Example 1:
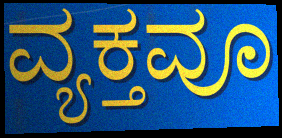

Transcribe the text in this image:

ವ್ಯಕ್ತವೂ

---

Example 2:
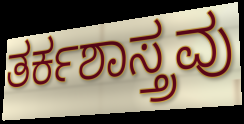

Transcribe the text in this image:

ತರ್ಕಶಾಸ್ತ್ರವು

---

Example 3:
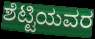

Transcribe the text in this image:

ಶೆಟ್ಟಿಯವರ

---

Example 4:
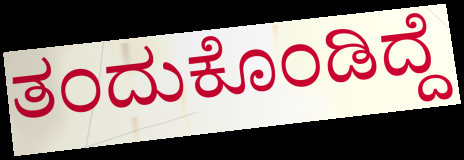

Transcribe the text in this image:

ತಂದುಕೊಂಡಿದ್ದೆ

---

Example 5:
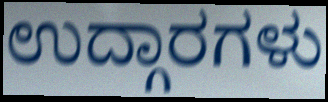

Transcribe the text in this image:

ಉದ್ಗಾರಗಳು